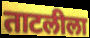
ताटलीला